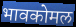
भावकोमल